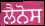
ਲੈਨੋਸ